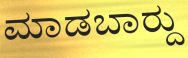
ಮಾಡಬಾರ್‍ದು